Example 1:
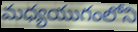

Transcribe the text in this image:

మధ్యయుగంలోని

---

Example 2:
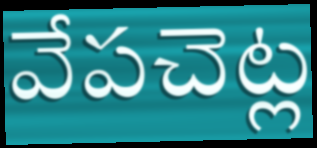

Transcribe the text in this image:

వేపచెట్ల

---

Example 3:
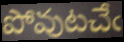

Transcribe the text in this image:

పోవుటచేఁ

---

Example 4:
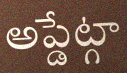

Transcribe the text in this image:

అప్డేట్గా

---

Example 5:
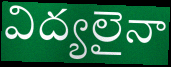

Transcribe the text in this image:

విద్యలైనా